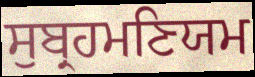
ਸੁਬ੍ਰਹਮਣਿਯਮ